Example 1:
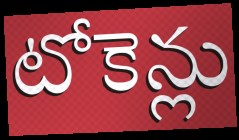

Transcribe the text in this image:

టోకెన్లు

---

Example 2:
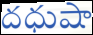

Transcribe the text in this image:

దధుషా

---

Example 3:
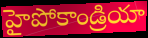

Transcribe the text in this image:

హైపోకాండ్రియా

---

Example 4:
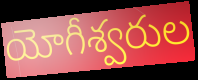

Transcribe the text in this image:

యోగీశ్వరుల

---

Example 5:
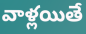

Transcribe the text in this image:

వాళ్లయితే